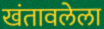
खंतावलेला